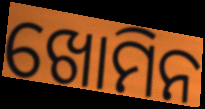
ଖୋମିନ